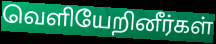
வெளியேறினீர்கள்